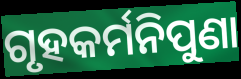
ଗୃହକର୍ମନିପୁଣା